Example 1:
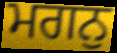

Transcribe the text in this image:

ਮਗਨੁ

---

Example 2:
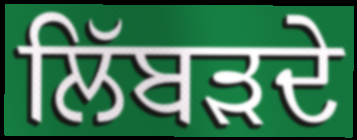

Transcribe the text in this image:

ਲਿੱਬੜਦੇ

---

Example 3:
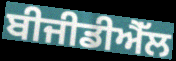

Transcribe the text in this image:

ਬੀਜੀਡੀਐੱਲ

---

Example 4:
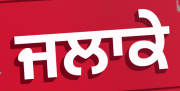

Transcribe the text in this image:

ਜਲਾਕੇ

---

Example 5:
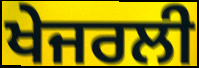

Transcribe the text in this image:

ਖੇਜਰਲੀ